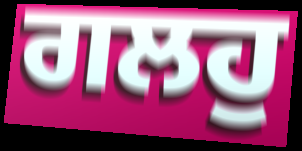
ਗਲਹੁ